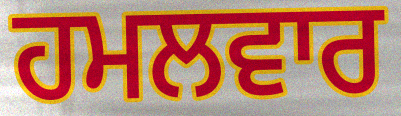
ਹਮਲਵਾਰ